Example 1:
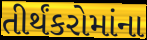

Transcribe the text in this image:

તીર્થંકરોમાંના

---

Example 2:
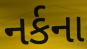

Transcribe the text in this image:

નર્કના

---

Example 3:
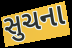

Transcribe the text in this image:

સુચના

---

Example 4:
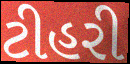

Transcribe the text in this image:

ટીહરી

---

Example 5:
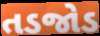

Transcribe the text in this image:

તડજોડ